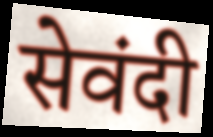
सेवंदी